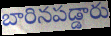
బారినపడ్డారు